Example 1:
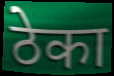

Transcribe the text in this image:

ठेका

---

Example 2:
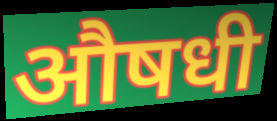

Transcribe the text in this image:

औषधी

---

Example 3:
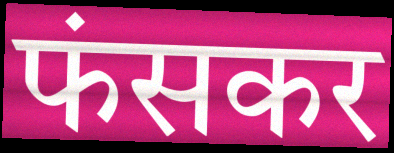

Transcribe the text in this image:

फंसकर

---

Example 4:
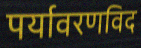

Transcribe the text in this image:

पर्यावरणविद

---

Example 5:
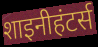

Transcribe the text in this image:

शाइनीहंटर्स